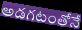
అడగటంతోనే